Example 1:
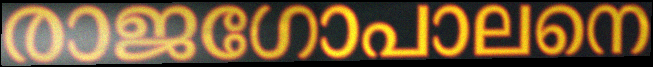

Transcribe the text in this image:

രാജഗോപാലനെ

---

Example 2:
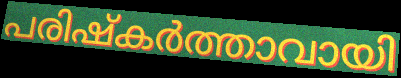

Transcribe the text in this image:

പരിഷ്കർത്താവായി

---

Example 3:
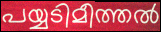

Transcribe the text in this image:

പയ്യടിമീത്തൽ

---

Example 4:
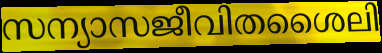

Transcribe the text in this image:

സന്യാസജീവിതശൈലി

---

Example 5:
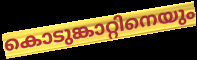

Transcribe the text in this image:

കൊടുങ്കാറ്റിനെയും